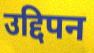
उद्दिपन